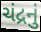
ચંદ્રનું